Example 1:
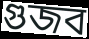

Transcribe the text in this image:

গুজব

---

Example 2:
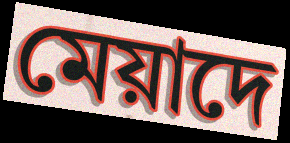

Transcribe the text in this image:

মেয়াদে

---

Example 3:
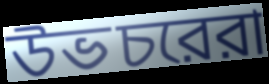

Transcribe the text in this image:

উভচরেরা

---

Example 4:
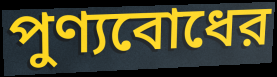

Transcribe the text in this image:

পুণ্যবোধের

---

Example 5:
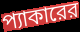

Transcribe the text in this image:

প্যাকারের